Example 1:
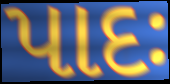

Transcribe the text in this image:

પાદઃ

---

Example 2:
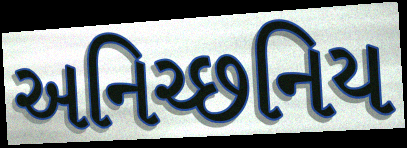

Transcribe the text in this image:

અનિચ્છનિય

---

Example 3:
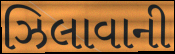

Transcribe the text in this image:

ઝિલાવાની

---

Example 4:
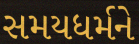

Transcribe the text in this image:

સમયધર્મને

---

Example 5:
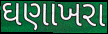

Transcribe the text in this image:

ઘણાખરા